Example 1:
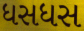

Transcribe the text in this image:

ધસધસ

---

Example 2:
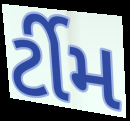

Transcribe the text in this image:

ર્ટીમ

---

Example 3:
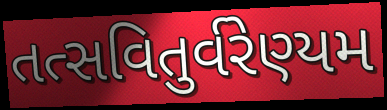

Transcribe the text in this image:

તત્સવિતુર્વરેણ્યમ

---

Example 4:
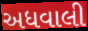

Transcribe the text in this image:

અધવાલી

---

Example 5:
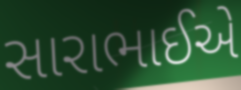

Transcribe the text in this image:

સારાભાઈએ